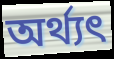
অর্থ্যৎ